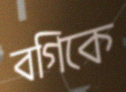
বগিকে